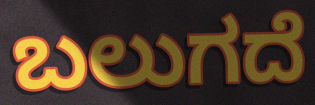
ಬಲುಗದೆ